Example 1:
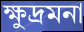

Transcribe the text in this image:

ক্ষুদ্রমনা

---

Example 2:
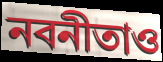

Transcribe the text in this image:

নবনীতাও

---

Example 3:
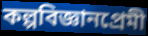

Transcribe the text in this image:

কল্পবিজ্ঞানপ্রেমী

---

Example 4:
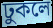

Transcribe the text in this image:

ঢুকলে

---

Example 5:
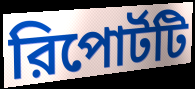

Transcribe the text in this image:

রিপোর্টটি